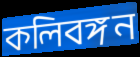
কলিবঙ্গন